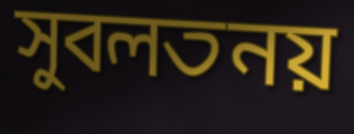
সুবলতনয়